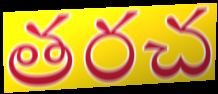
తరచ